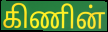
கிணின்